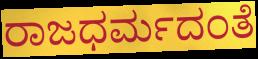
ರಾಜಧರ್ಮದಂತೆ